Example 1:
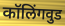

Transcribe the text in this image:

कॉलिंगवुड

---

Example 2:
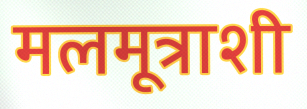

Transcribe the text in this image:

मलमूत्राशी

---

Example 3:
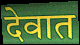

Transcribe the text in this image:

देवात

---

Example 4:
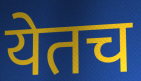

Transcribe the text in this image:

येतच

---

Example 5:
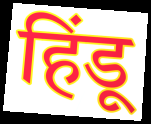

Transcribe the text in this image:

हिंडू